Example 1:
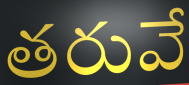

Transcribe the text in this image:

తరువే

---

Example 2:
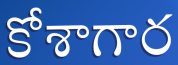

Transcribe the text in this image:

కోశాగార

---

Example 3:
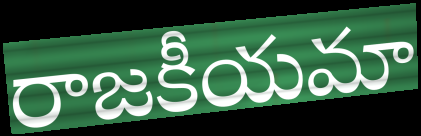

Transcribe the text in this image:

రాజకీయమా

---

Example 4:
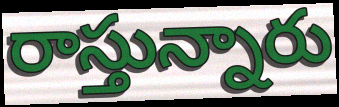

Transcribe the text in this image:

రాస్తున్నారు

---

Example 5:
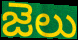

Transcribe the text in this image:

జెలు